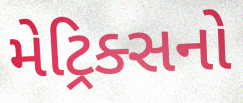
મેટ્રિક્સનો